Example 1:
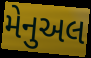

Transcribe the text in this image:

મેનુઅલ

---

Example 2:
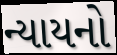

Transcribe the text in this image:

ન્યાયનો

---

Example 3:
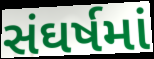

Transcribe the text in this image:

સંઘર્ષમાં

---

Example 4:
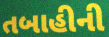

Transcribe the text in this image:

તબાહીની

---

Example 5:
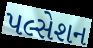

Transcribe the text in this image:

પલ્સેશન